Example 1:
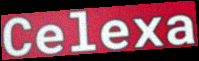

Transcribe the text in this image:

Celexa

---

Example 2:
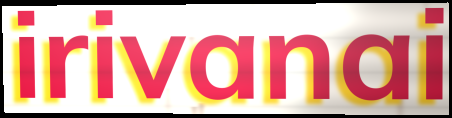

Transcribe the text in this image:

irivanai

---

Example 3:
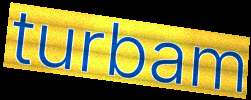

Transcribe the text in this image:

turbam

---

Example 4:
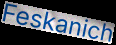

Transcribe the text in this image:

Feskanich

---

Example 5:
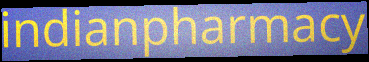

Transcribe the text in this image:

indianpharmacy